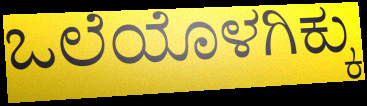
ಒಲೆಯೊಳಗಿಕ್ಕು